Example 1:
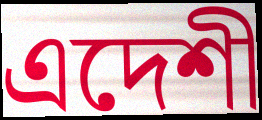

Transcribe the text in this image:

এদেশী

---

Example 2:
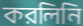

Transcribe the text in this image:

করলিনি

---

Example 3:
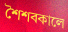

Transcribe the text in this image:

শৈশবকালে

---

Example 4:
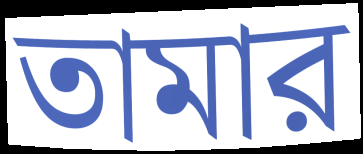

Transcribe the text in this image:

তামার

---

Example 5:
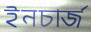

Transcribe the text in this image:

ইনচার্জ